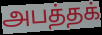
அபத்தக்